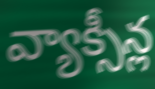
వ్యాక్సీన్ల